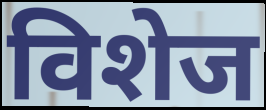
विशेज